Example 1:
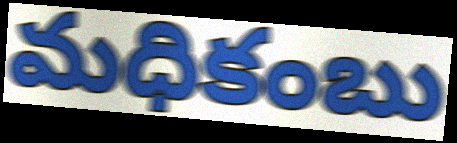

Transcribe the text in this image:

మధికంబు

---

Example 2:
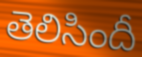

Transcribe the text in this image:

తెలిసిందీ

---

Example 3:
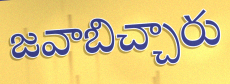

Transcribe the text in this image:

జవాబిచ్చారు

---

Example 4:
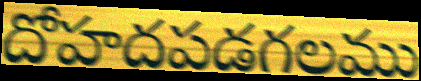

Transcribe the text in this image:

దోహదపడగలము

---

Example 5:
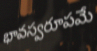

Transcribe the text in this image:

భావస్వరూపమే